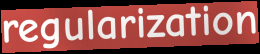
regularization